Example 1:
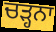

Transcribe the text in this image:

ਚੜ੍ਹਨਾ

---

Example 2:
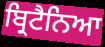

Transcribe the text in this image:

ਬ੍ਰਿਟੈਨਿਆ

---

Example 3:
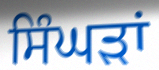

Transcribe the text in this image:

ਸਿੰਘੜਾਂ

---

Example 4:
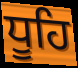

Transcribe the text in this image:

ਧੂਹਿ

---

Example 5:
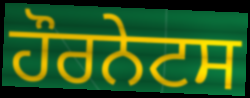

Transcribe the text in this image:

ਹੌਰਨੇਟਸ